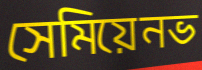
সেমিয়েনভ